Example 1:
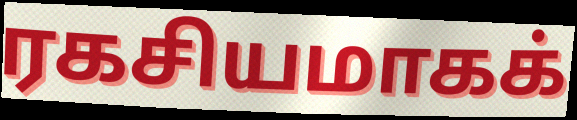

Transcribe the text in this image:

ரகசியமாகக்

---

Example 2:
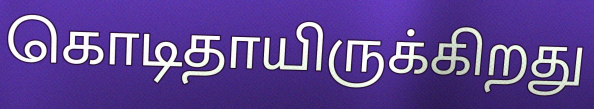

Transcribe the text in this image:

கொடிதாயிருக்கிறது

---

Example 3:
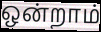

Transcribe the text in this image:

ஒன்றாம்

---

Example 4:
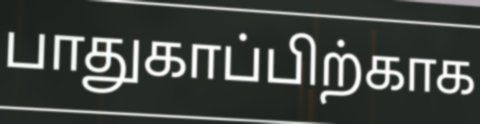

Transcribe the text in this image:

பாதுகாப்பிற்காக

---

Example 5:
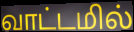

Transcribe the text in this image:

வாட்டமில்